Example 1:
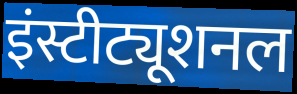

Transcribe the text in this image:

इंस्टीट्यूशनल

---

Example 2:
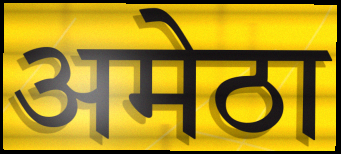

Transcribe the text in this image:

अमेठा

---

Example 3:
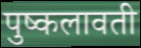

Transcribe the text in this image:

पुष्कलावती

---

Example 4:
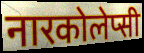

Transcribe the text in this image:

नारकोलेप्सी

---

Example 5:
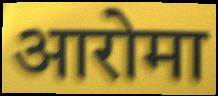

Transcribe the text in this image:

आरोमा